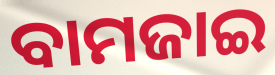
ବାମଜାଇ